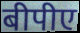
बीपीए